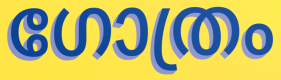
ഗോത്രം